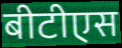
बीटीएस